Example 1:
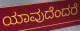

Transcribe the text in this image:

ಯಾವುದೆಂದರೆ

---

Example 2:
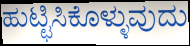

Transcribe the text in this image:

ಹುಟ್ಟಿಸಿಕೊಳ್ಳುವುದು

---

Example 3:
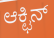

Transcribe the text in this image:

ಆಕ್ಟಿನ್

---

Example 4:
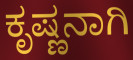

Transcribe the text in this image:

ಕೃಷ್ಣನಾಗಿ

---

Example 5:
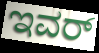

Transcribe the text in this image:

ಇವರ್